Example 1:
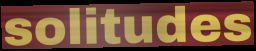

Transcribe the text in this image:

solitudes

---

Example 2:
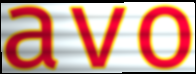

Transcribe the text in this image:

avo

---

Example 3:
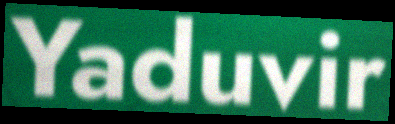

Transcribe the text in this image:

Yaduvir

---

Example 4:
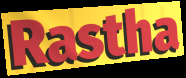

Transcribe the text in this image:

Rastha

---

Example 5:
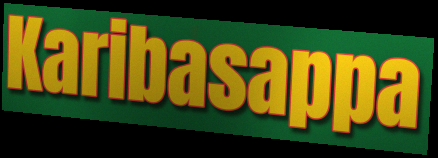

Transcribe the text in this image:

Karibasappa